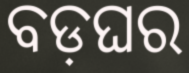
ବଡ଼ଘର